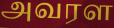
அவரள